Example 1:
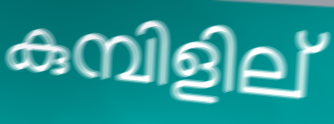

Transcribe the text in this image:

കുമ്പിളില്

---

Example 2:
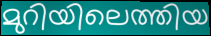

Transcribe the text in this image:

മുറിയിലെത്തിയ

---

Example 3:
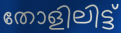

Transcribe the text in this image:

തോളിലിട്ട്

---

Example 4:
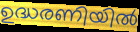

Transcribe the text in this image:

ഉദ്ധരണിയിൽ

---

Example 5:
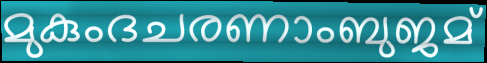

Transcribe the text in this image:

മുകുംദചരണാംബുജമ്